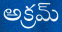
అక్రమ్